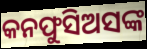
କନଫୁସିଅସଙ୍କ